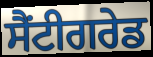
ਸੈਂਟੀਗਰੇਡ